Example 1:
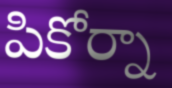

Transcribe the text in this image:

పికోర్నా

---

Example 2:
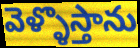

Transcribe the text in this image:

వెళ్ళొస్తాను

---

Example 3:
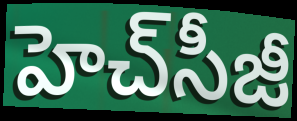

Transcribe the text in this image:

హెచ్‌సీజీ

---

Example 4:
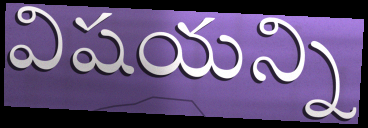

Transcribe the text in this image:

విషయన్ని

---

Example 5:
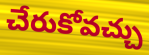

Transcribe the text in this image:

చేరుకోవచ్చు